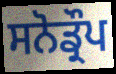
ਸਨੋਡ੍ਰੌਪ